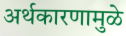
अर्थकारणामुळे